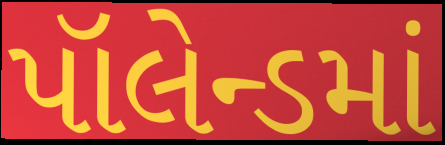
પૉલેન્ડમાં